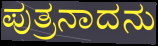
ಪುತ್ರನಾದನು